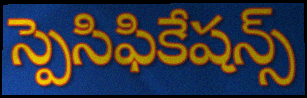
స్పెసిఫికేషన్స్